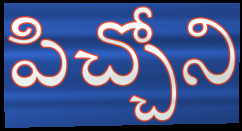
పిచ్చోని